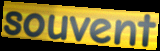
souvent